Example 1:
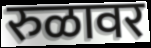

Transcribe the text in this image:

रुळावर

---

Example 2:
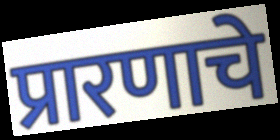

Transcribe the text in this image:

प्रारणाचे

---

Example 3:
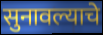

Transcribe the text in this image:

सुनावल्याचे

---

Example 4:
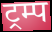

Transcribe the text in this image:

ट्रम्‍प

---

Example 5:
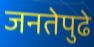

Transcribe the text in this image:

जनतेपुढे